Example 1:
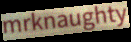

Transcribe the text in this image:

mrknaughty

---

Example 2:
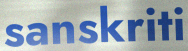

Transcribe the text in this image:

sanskriti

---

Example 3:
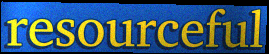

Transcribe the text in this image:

resourceful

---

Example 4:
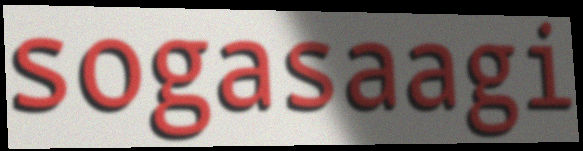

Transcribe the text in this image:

sogasaagi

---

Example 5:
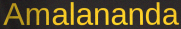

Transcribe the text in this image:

Amalananda